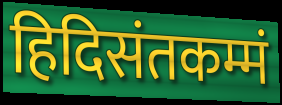
हिदिसंतकम्मं